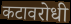
कटावरोधी